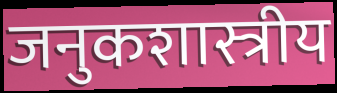
जनुकशास्त्रीय